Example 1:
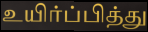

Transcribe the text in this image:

உயிர்ப்பித்து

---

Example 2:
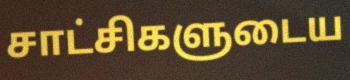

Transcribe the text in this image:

சாட்சிகளுடைய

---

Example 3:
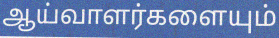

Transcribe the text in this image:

ஆய்வாளர்களையும்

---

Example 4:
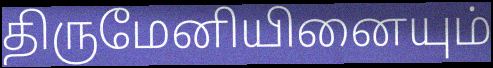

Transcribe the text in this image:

திருமேனியினையும்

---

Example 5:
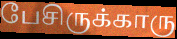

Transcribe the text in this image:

பேசிருக்காரு